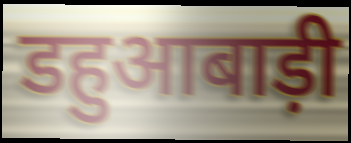
डहुआबाड़ी